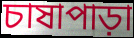
চাষাপাড়া